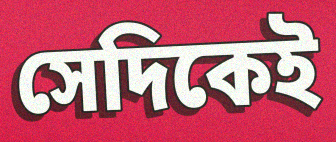
সেদিকেই